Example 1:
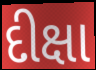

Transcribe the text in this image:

દીક્ષા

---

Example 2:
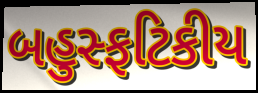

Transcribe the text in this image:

બહુસ્ફટિકીય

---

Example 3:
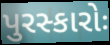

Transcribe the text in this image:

પુરસ્કારોઃ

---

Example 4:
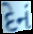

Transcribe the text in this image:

દેનં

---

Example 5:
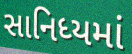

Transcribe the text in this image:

સાનિધ્યમાં